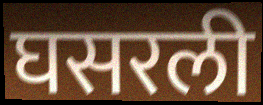
घसरली